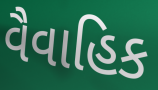
વૈવાહિક